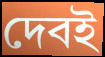
দেবই